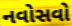
નવોસવો